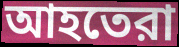
আহতেরা